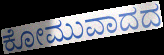
ಕೋಮುವಾದದ